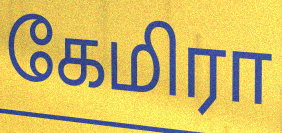
கேமிரா